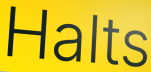
Halts